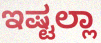
ಇಷ್ಟಲ್ಲಾ